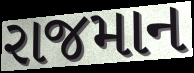
રાજમાન